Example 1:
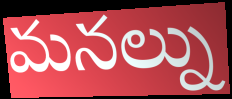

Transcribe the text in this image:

మనల్ను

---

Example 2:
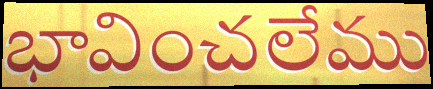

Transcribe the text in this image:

భావించలేము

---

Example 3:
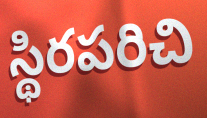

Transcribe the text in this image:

స్థిరపరిచి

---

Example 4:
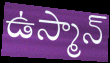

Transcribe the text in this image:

ఉస్మాన్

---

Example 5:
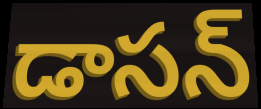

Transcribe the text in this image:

డాసన్